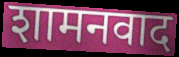
शामनवाद